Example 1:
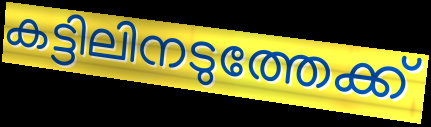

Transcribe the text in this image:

കട്ടിലിനടുത്തേക്ക്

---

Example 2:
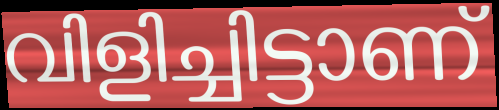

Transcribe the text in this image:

വിളിച്ചിട്ടാണ്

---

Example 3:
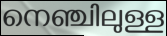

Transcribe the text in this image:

നെഞ്ചിലുള്ള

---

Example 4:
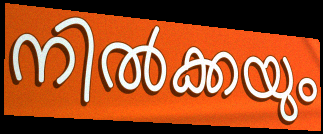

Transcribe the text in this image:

നിൽക്കയും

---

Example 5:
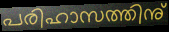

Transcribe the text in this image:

പരിഹാസത്തിനു്